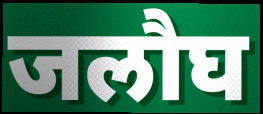
जलौघ